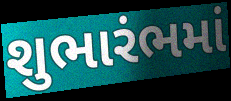
શુભારંભમાં